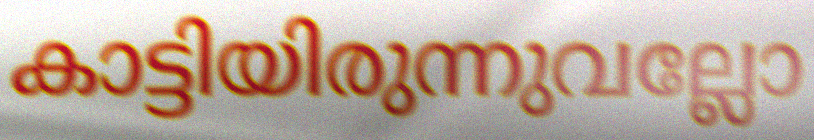
കാട്ടിയിരുന്നുവല്ലോ